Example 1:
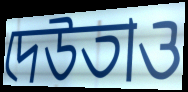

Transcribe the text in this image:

দেউতাও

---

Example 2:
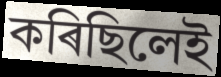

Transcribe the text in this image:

কৰিছিলেই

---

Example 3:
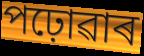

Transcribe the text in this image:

পঢ়োৱাৰ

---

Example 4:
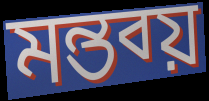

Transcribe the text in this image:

মন্তব্য়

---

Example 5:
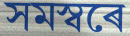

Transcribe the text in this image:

সমস্বৰে